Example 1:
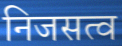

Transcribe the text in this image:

निजसत्व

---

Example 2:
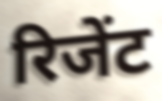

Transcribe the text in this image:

रिजेंट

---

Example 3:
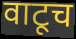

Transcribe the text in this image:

वाटूच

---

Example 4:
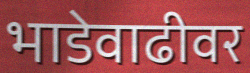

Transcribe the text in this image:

भाडेवाढीवर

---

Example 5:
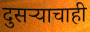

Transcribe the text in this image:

दुसऱ्याचाही